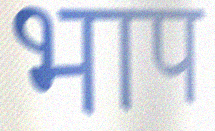
भाप